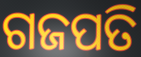
ଗଜପତି